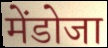
मेंडोजा